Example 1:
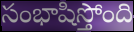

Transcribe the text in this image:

సంభాషిస్తోంది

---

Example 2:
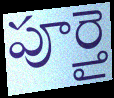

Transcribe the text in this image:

పూర్తై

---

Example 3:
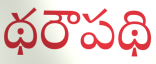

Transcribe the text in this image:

థరౌపథి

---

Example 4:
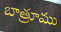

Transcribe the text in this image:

బాత్రూము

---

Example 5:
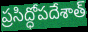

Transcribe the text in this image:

ప్రసిద్ధోపదేశాత్